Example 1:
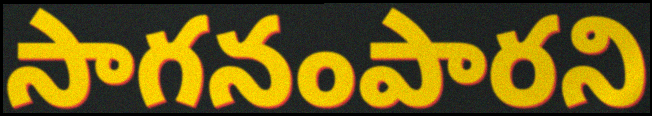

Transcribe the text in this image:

సాగనంపారని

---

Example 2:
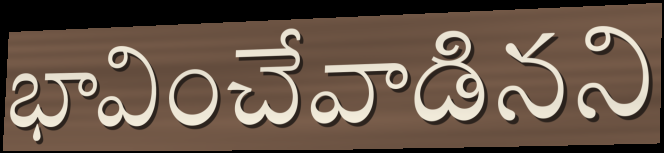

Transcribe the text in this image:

భావించేవాడినని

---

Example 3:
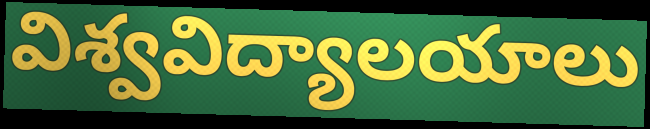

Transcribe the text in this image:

విశ్వవిద్యాలయాలు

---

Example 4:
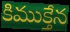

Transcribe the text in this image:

కిముక్తేన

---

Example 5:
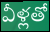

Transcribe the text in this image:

వీళ్లతో